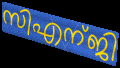
സിഎന്ജി